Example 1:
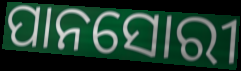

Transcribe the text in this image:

ପାନସୋରୀ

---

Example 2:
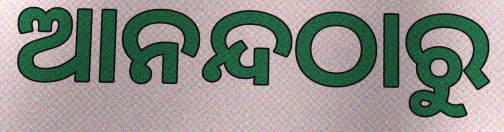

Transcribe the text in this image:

ଆନନ୍ଦଠାରୁ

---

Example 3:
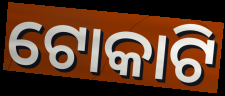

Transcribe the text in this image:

ଟୋକାଟି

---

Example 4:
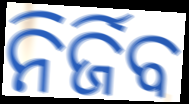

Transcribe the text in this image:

ନିର୍ଜିବ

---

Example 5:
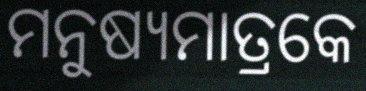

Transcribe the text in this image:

ମନୁଷ୍ୟମାତ୍ରକେ